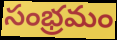
సంభ్రమం